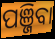
ପଞ୍ଜିବା